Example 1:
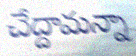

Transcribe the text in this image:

చేద్దామన్నా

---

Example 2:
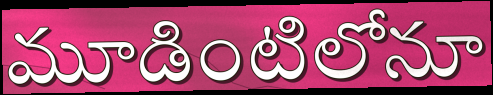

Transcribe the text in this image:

మూడింటిలోనూ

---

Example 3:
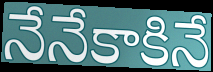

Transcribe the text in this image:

నేనేకాకినే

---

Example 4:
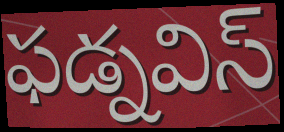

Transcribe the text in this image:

ఫడ్నవిస్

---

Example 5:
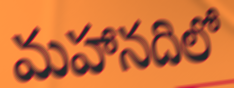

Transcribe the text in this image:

మహానదిలో